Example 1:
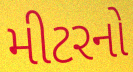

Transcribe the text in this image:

મીટરનો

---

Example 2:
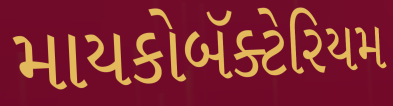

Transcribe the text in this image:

માયકોબૅક્ટેરિયમ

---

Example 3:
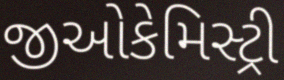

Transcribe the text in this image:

જીઓકેમિસ્ટ્રી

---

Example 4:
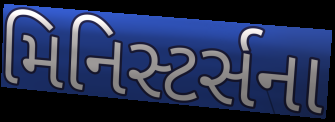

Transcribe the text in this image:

મિનિસ્ટર્સના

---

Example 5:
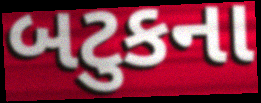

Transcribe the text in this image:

બટુકના